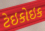
ટેઇકોઇક